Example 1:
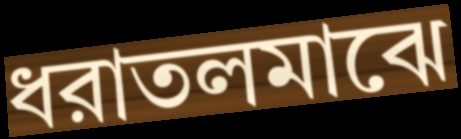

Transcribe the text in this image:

ধরাতলমাঝে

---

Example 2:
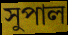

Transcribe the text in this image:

সুপাল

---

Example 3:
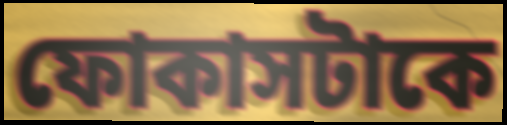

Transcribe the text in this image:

ফোকাসটাকে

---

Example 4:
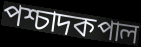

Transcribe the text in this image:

পশ্চাদকপাল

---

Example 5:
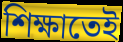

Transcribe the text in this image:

শিক্ষাতেই